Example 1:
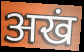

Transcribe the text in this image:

अखं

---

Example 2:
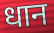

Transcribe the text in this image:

धान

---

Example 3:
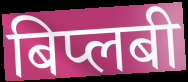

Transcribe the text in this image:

बिप्लबी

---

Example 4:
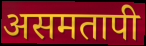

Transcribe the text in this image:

असमतापी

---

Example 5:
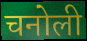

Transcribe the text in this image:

चनोली